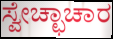
ಸ್ವೇಚ್ಛಾಚಾರ